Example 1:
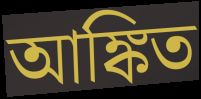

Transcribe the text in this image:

আঙ্কিত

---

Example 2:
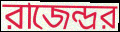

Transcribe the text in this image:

রাজেন্দ্রর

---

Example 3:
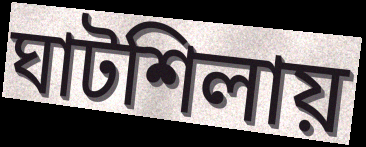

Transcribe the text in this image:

ঘাটশিলায়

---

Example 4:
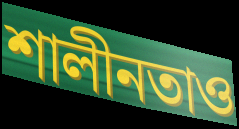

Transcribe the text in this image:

শালীনতাও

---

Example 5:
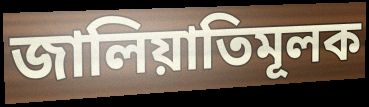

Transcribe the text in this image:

জালিয়াতিমূলক